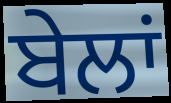
ਬੇਲਾਂ